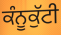
ਕੰਨੂਕੁੱਟੀ